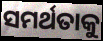
ସମର୍ଥତାକୁ